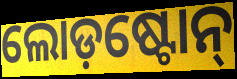
ଲୋଡ଼ଷ୍ଟୋନ୍